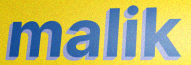
malik